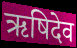
ऋषिदेव